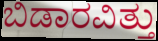
ಬಿಡಾರವಿತ್ತು